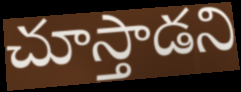
చూస్తాడని